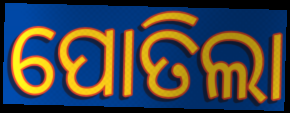
ପୋତିଲା